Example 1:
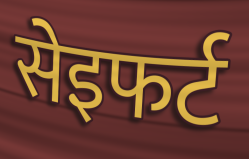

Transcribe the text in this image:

सेइफर्ट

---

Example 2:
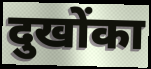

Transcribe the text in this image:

दुखोंका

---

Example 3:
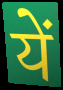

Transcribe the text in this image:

यें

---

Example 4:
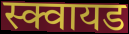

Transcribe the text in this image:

स्क्वायड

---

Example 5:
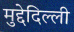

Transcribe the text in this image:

मुद्देदिल्ली